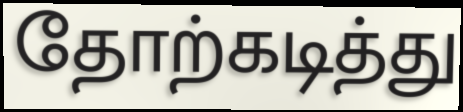
தோற்கடித்து